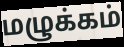
மழுக்கம்